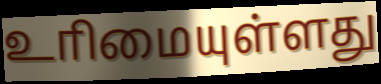
உரிமையுள்ளது